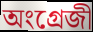
অংগ্ৰেজী